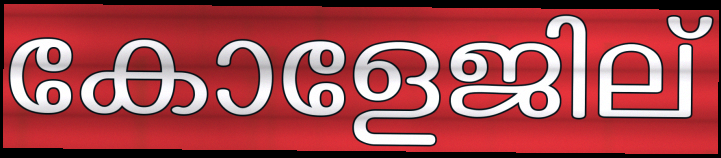
കോളേജില്